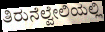
ತಿರುನೆಲ್ವೇಲಿಯಲ್ಲಿ